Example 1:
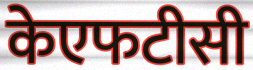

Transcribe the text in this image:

केएफटीसी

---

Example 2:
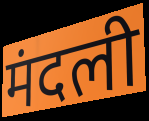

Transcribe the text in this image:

मंदली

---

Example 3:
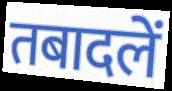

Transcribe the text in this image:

तबादलें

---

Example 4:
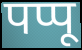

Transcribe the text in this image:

पप्‍पू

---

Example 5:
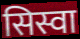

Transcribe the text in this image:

सिस्वा